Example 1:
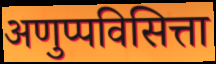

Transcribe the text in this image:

अणुप्पविसित्ता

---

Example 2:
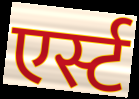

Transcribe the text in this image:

एर्स्ट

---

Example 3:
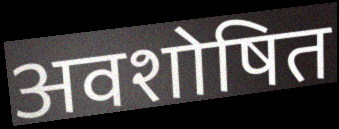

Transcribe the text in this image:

अवशोषित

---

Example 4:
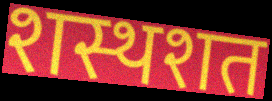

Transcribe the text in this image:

शस्थशत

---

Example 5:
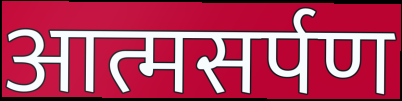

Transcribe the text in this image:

आत्मसर्पण